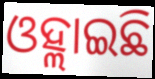
ଓହ୍ଲାଇଛି